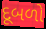
દૂબળો